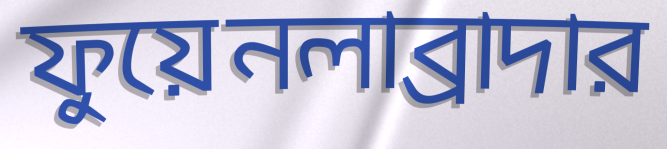
ফুয়েনলাব্রাদার